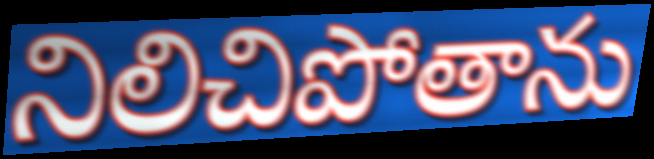
నిలిచిపోతాను